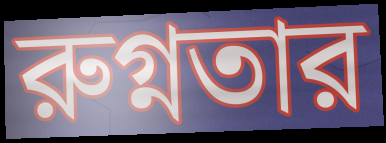
রুগ্নতার